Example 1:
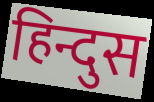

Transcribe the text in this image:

हिन्दुस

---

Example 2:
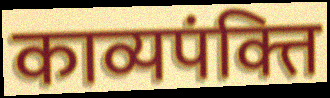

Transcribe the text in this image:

काव्यपंक्ति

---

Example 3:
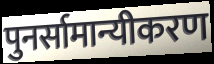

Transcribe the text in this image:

पुनर्सामान्यीकरण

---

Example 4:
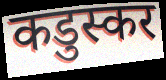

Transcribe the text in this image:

कडुस्कर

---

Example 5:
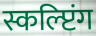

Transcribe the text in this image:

स्कल्प्टिंग